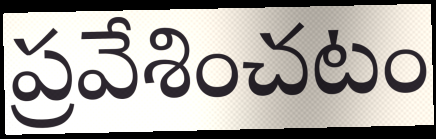
ప్రవేశించటం